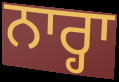
ਨਾਰ੍ਹਾ